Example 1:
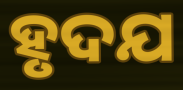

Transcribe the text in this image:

ହୃଦଯ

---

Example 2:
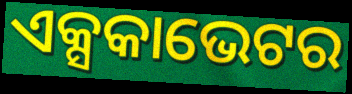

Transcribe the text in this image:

ଏକ୍ସକାଭେଟର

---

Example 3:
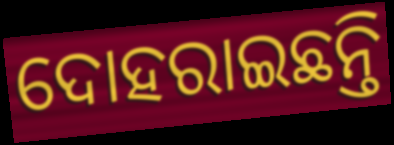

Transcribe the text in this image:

ଦୋହରାଇଛନ୍ତି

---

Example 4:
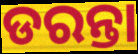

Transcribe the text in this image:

ଡରନ୍ତା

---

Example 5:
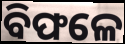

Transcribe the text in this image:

ବିଫଳେ